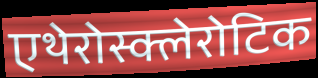
एथेरोस्क्लेरोटिक